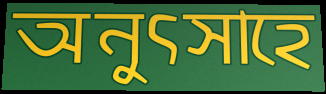
অনুৎসাহে